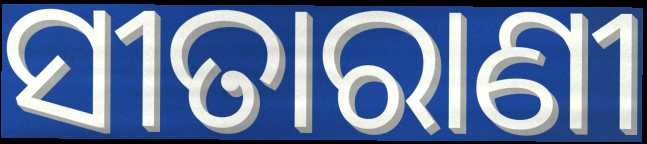
ସୀତାରାଣୀ